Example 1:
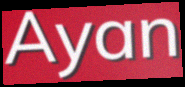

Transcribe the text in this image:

Ayan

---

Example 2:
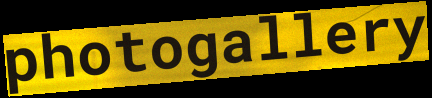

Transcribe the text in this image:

photogallery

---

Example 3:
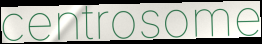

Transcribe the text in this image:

centrosome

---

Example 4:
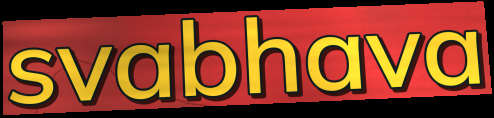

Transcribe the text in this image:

svabhava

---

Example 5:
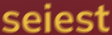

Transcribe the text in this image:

seiest